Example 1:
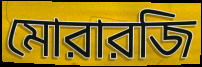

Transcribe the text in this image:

মোরারজি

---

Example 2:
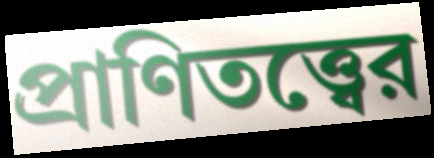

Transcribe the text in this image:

প্রাণিতত্ত্বের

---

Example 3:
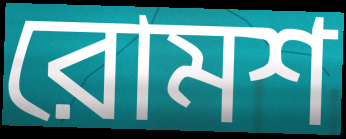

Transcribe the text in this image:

রোমশ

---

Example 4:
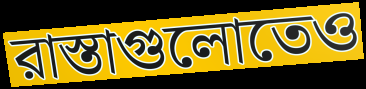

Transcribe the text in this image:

রাস্তাগুলোতেও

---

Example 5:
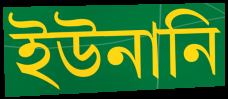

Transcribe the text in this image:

ইউনানি